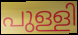
പുള്ളി